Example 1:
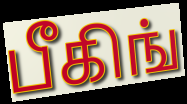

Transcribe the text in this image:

பீகிங்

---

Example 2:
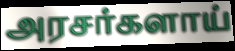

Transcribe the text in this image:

அரசர்களாய்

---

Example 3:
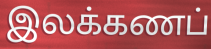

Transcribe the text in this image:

இலக்கணப்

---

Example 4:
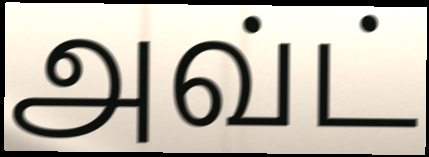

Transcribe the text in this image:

அவ்ட்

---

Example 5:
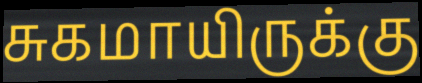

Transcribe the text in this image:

சுகமாயிருக்கு